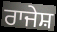
ਰਾਜੇਸ਼